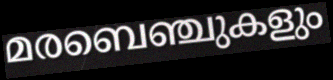
മരബെഞ്ചുകളും